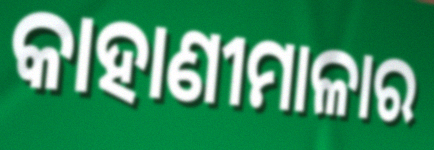
କାହାଣୀମାଳାର